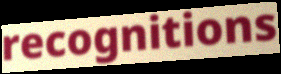
recognitions